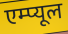
एम्प्यूल